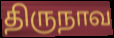
திருநாவ